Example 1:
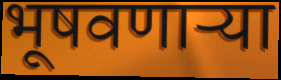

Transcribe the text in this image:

भूषवणाऱ्या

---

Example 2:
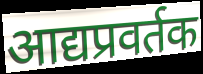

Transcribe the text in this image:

आद्यप्रवर्तक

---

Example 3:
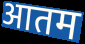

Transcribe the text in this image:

आतम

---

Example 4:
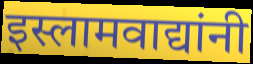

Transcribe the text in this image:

इस्लामवाद्यांनी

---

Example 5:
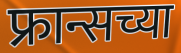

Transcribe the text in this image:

फ्रान्सच्या